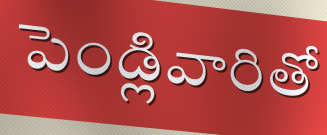
పెండ్లివారితో